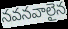
నవనవాలైన